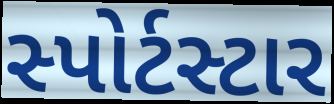
સ્પોર્ટસ્ટાર